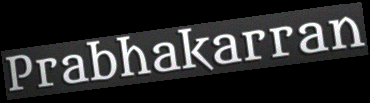
Prabhakarran